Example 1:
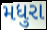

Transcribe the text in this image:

મધુરા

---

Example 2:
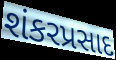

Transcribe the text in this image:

શંકરપ્રસાદ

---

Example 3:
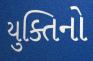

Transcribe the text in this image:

યુક્તિનો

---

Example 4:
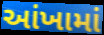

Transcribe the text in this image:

આંખામાં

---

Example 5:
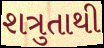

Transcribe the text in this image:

શત્રુતાથી